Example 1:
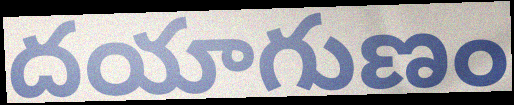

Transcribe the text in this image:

దయాగుణం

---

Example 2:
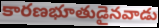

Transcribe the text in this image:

కారణభూతుడైనవాడు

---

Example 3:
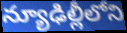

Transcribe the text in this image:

న్యూఢిల్లీలోని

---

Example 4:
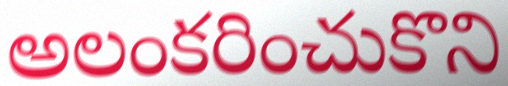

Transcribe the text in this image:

అలంకరించుకొని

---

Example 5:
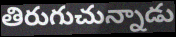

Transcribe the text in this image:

తిరుగుచున్నాడు